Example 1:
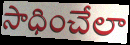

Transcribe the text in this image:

సాధించేలా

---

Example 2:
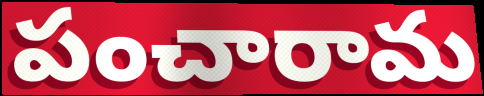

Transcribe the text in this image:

పంచారామ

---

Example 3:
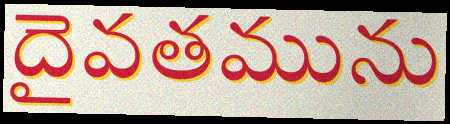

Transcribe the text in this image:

దైవతమును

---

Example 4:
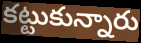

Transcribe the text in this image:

కట్టుకున్నారు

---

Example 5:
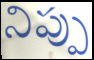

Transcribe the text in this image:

నిప్పు